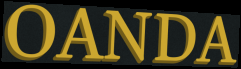
OANDA